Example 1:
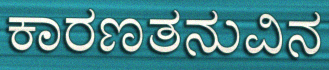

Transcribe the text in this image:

ಕಾರಣತನುವಿನ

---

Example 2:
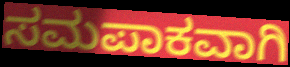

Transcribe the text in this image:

ಸಮಪಾಕವಾಗಿ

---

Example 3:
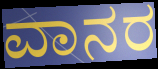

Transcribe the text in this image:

ವಾನರ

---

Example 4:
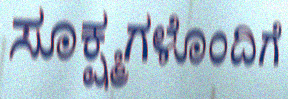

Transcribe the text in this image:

ಸೂಕ್ಷ್ಮಗಳೊಂದಿಗೆ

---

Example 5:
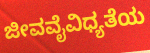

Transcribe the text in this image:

ಜೀವವೈವಿಧ್ಯತೆಯ